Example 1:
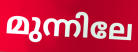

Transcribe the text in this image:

മുന്നിലേ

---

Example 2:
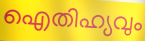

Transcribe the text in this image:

ഐതിഹ്യവും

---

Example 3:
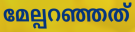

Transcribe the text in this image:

മേല്പറഞ്ഞത്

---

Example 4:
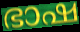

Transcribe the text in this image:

ഭാഷ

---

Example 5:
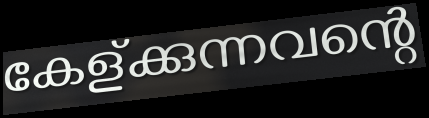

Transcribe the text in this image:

കേള്ക്കുന്നവന്റെ